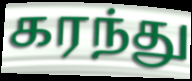
கரந்து